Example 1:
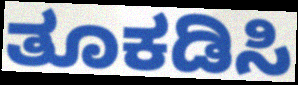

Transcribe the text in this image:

ತೂಕಡಿಸಿ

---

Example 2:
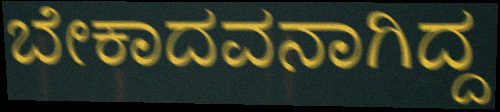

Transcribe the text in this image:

ಬೇಕಾದವನಾಗಿದ್ದ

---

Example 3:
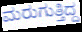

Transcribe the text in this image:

ಮರುಗುತ್ತಿದ್ದ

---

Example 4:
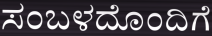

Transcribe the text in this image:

ಸಂಬಳದೊಂದಿಗೆ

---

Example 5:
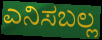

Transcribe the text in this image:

ಎನಿಸಬಲ್ಲ